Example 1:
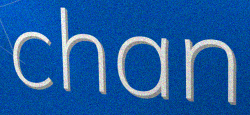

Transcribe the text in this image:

chan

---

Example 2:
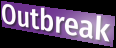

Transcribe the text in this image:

Outbreak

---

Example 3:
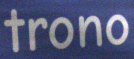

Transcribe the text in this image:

trono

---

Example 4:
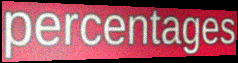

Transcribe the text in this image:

percentages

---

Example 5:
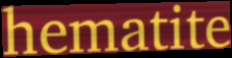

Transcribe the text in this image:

hematite